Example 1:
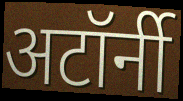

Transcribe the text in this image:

अटॉर्नी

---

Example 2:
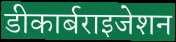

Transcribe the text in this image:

डीकार्बराइजेशन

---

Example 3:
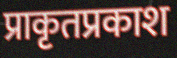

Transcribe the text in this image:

प्राकृतप्रकाश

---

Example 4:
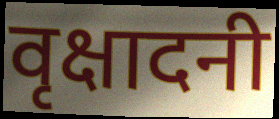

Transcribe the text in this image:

वृक्षादनी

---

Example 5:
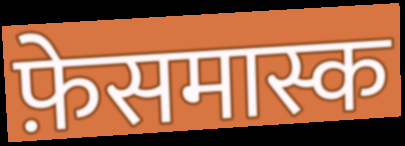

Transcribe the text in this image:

फ़ेसमास्क